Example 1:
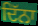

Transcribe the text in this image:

ਦਿੱਨਾ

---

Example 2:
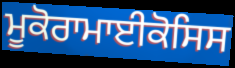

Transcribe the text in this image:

ਮੂਕੋਰਾਮਾਈਕੋਸਿਸ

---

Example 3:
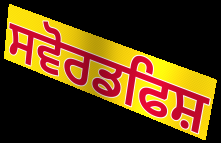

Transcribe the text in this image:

ਸਵੋਰਡਫਿਸ਼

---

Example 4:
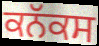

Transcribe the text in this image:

ਕਨੱਕਸ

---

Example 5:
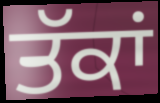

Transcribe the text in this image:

ਤੱਕਾਂ